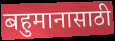
बहुमानासाठी